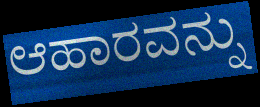
ಆಹಾರವನ್ನು